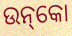
ଉନ୍‌କୋ